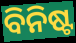
ବିନିଷ୍ଟ